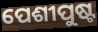
ପେଶୀପୁଷ୍ଟ